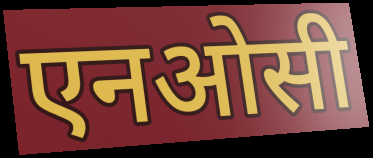
एनओसी